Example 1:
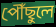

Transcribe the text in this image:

পৌঁছুলে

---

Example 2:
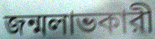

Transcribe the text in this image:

জন্মলাভকারী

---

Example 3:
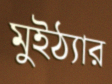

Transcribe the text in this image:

মুইঠ্যার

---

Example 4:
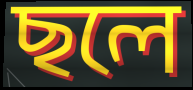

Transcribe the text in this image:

ছলে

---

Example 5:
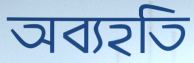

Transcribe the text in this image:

অব্যহতি